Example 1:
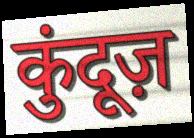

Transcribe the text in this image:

कुंदूज़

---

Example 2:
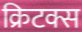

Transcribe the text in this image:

क्रिटक्स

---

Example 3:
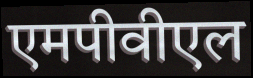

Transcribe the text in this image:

एमपीवीएल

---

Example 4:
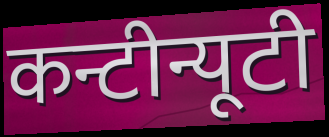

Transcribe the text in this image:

कन्टीन्यूटी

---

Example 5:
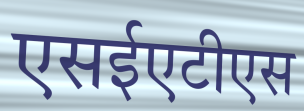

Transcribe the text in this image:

एसईएटीएस